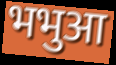
भभुआ